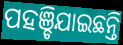
ପହଞ୍ଚିଯାଇଛନ୍ତି